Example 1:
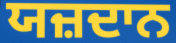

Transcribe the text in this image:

ਯਜ਼ਦਾਨ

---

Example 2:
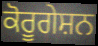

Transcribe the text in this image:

ਕੋਰੂਗੇਸ਼ਨ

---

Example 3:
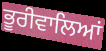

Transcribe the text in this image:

ਭੂਰੀਵਾਲਿਆਂ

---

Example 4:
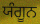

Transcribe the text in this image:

ਯੰਗੂਨ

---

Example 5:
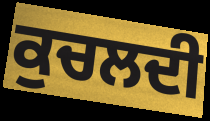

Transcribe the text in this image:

ਕੁਚਲਦੀ